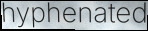
hyphenated